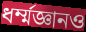
ধর্ম্মজ্ঞানও